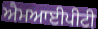
ਐਮਆਈਪੀਟੀ